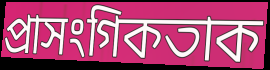
প্ৰাসংগিকতাক